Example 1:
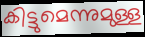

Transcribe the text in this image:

കിട്ടുമെന്നുമുള്ള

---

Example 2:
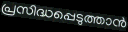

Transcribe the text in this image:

പ്രസിദ്ധപ്പെടുത്താൻ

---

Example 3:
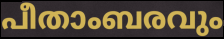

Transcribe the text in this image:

പീതാംബരവും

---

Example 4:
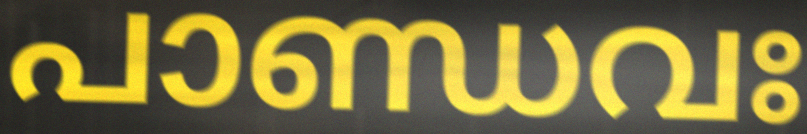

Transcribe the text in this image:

പാണ്ഡവഃ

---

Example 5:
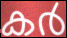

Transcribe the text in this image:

കർ